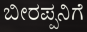
ಬೀರಪ್ಪನಿಗೆ